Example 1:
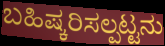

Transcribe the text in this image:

ಬಹಿಷ್ಕರಿಸಲ್ಪಟ್ಟನು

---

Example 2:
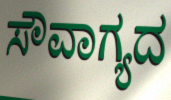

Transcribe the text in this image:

ಸೌವಾಗ್ಯದ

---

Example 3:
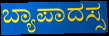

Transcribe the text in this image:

ಬ್ಯಾಪಾದಸ್ಸ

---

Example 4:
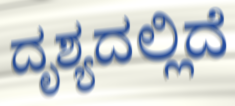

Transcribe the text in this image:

ದೃಶ್ಯದಲ್ಲಿದೆ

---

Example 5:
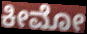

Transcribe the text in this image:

ಕೀಮೋ